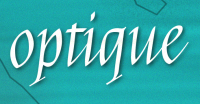
optique